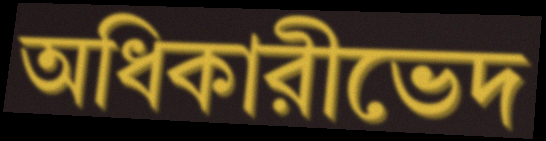
অধিকারীভেদ